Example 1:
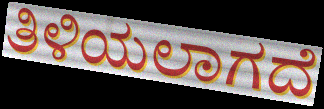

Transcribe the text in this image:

ತಿಳಿಯಲಾಗದೆ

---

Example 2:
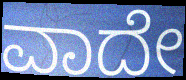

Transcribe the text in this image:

ವಾದೇ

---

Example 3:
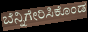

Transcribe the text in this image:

ಬೆನ್ನಿಗೇರಿಸಿಕೊಂಡ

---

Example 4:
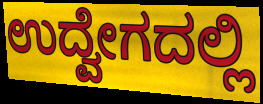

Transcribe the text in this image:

ಉದ್ವೇಗದಲ್ಲಿ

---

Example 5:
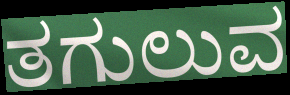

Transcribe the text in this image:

ತಗುಲುವ